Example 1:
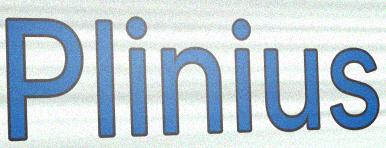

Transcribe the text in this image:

Plinius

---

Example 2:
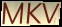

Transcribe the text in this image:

MKV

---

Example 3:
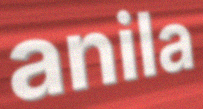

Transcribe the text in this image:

anila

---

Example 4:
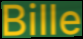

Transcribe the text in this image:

Bille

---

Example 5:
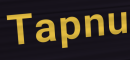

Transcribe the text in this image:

Tapnu